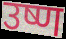
उष्ण